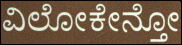
ವಿಲೋಕೇನ್ತೋ